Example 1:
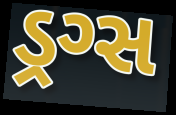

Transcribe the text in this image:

ડ્રગ્સ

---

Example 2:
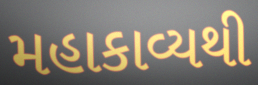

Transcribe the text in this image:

મહાકાવ્યથી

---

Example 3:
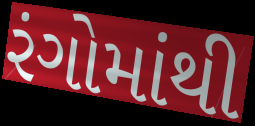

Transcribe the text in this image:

રંગોમાંથી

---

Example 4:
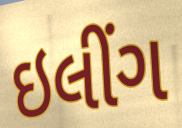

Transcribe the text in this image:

ઇલીંગ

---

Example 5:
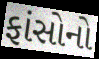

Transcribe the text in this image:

ફાંસોનો